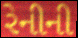
રેનીની